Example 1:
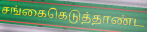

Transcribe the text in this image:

சங்கைகெடுத்தாண்ட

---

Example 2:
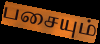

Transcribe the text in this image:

பசையும்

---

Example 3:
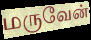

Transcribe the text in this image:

மருவேன்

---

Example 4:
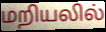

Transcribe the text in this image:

மறியலில்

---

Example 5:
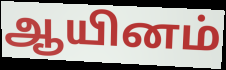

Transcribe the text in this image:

ஆயினம்